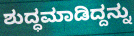
ಶುದ್ಧಮಾಡಿದ್ದನ್ನು